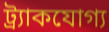
ট্র্যাকযোগ্য